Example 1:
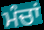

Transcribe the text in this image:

ਮੰਚਾਂ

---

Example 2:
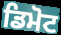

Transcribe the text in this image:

ਡਿਮੋਟ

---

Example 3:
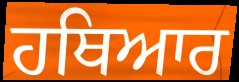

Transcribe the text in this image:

ਹਥਿਆਰ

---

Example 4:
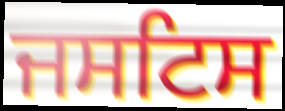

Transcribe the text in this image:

ਜਸਟਿਸ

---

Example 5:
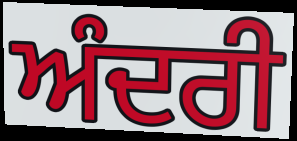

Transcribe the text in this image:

ਅੰਦਰੀ